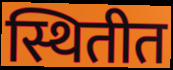
स्थितीत